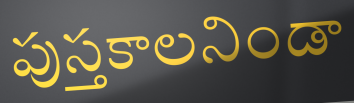
పుస్తకాలనిండా